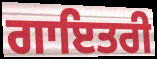
ਗਾਇਤਰੀ